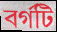
বর্গটি